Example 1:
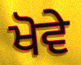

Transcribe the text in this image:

ਖੋਵੇ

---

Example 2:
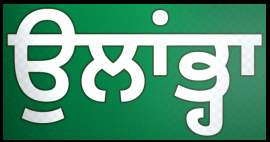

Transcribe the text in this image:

ਉਲਾਂਭ੍ਹਾ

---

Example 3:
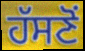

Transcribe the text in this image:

ਹੱਸਣੋਂ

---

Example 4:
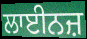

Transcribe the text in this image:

ਲਾਈਨਜ਼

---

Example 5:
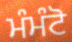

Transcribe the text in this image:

ਮੰਮੰਟੋ